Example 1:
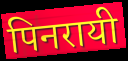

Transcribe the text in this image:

पिनरायी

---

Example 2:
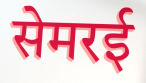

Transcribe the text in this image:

सेमरई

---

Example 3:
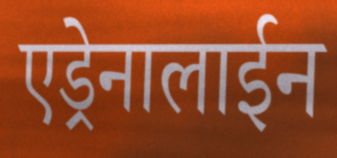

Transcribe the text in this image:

एड्रेनालाईन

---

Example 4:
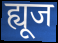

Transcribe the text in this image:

ह्यूज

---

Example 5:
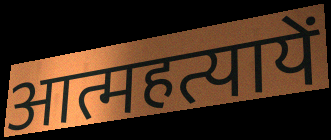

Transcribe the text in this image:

आत्महत्यायें